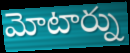
మోటార్ను